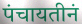
पंचायतीनं